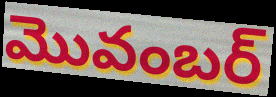
మొవంబర్